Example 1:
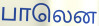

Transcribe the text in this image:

பாலென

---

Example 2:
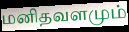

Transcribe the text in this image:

மனிதவளமும்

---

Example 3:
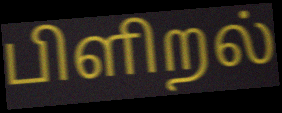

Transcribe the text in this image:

பிளிறல்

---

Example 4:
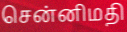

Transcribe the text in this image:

சென்னிமதி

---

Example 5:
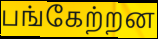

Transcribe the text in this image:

பங்கேற்றன